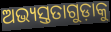
ଅଭ୍ୟସ୍ତତାଗୁଡ଼ାକୁ